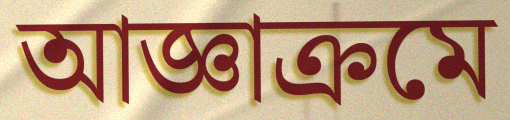
আজ্ঞাক্রমে